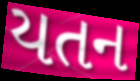
યતન